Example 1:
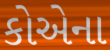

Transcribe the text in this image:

કોએના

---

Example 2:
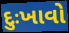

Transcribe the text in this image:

દુઃખાવો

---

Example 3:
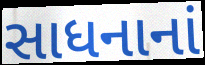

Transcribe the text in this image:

સાધનાનાં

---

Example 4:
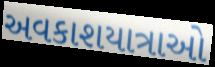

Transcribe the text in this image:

અવકાશયાત્રાઓ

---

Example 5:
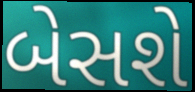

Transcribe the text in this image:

બેસશે